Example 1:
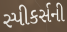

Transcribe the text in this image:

સ્પીકર્સની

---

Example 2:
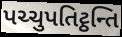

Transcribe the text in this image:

પચ્ચુપતિટ્ઠન્તિ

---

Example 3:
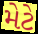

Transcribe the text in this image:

મેટે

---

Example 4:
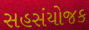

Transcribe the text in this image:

સહસંયોજક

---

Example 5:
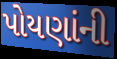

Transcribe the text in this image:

પોયણાંની